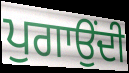
ਪੁਗਾਉਂਦੀ